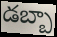
డబ్బా